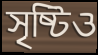
সৃষ্টিও